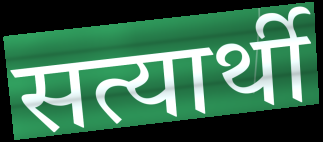
सत्यार्थी